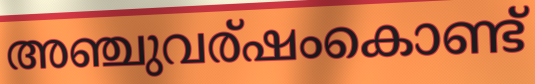
അഞ്ചുവര്ഷംകൊണ്ട്